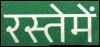
रस्तेमें